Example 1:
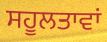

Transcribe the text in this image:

ਸਹੂਲਤਾਵਾਂ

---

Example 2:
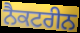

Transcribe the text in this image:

ਨੈਕਟਰੀਨ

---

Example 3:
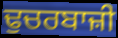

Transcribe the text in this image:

ਢੁਚਰਬਾਜ਼ੀ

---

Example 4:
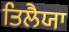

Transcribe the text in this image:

ਤਿਲੈਯਾ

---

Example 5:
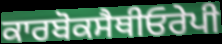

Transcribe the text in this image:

ਕਾਰਬੋਕਸੈਥੀਓਰੇਪੀ